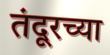
तंदूरच्या